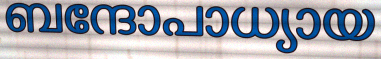
ബന്ദോപാധ്യായ